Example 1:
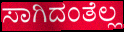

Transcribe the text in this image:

ಸಾಗಿದಂತೆಲ್ಲ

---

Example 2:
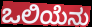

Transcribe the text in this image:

ಒಲಿಯೆನು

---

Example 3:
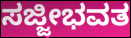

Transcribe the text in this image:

ಸಜ್ಜೀಭವತ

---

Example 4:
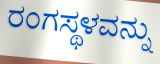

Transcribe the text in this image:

ರಂಗಸ್ಥಳವನ್ನು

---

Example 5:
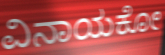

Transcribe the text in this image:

ವಿನಾಯಕೋ